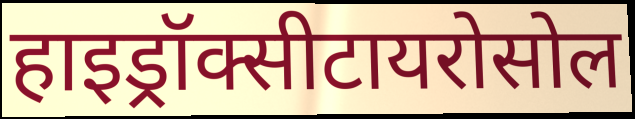
हाइड्रॉक्सीटायरोसोल